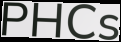
PHCs